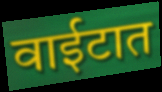
वाईटात